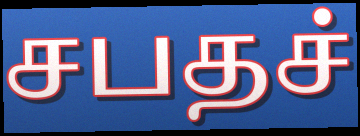
சபதச்